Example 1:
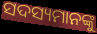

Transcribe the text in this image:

ସଦସ୍ୟମାନଙ୍କୁ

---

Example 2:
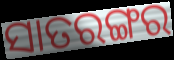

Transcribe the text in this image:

ସାତରଙ୍ଗର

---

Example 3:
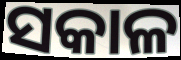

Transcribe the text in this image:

ସକାଳ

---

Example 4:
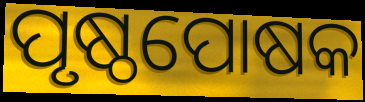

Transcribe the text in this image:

ପୃଷ୍ଠପୋଷକ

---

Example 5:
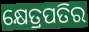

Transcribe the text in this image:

କ୍ଷେତ୍ରପତିର